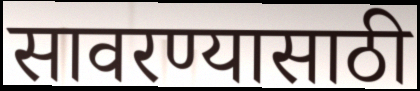
सावरण्यासाठी